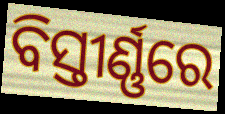
ବିସ୍ତୀର୍ଣ୍ଣରେ